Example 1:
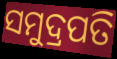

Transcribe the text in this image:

ସମୁଦ୍ରପତି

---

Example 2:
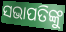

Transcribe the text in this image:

ସଭାପତିଙ୍କୁ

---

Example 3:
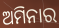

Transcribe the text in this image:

ଅମିନାର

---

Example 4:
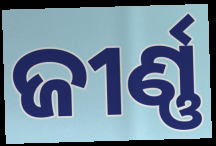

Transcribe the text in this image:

ଜୀର୍ଣ୍ଣ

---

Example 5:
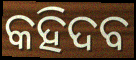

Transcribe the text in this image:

କହିଦବ